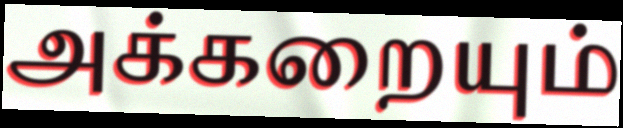
அக்கறையும்